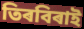
তিৰবিৰাই